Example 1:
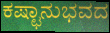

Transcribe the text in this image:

ಕಷ್ಟಾನುಭವದ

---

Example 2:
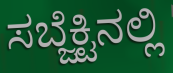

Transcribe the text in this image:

ಸಬ್ಜೆಕ್ಟಿನಲ್ಲಿ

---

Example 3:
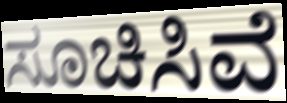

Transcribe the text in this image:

ಸೂಚಿಸಿವೆ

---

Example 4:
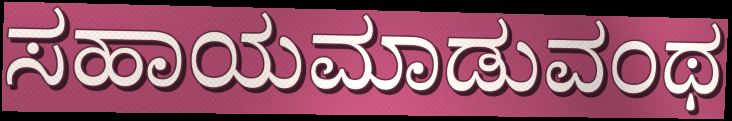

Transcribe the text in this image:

ಸಹಾಯಮಾಡುವಂಥ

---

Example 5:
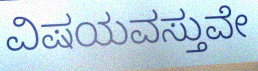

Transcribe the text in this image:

ವಿಷಯವಸ್ತುವೇ